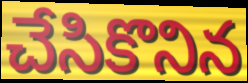
చేసికొనిన